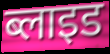
ब्लाइड